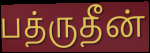
பத்ருதீன்